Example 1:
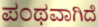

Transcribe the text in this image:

ಪಂಥವಾಗಿದೆ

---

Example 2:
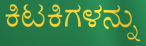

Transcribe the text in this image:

ಕಿಟಕಿಗಳನ್ನು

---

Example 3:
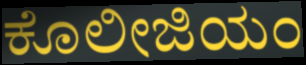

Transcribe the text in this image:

ಕೊಲೀಜಿಯಂ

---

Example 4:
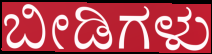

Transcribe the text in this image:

ಬೀಡಿಗಳು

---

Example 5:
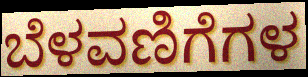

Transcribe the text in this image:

ಬೆಳವಣಿಗೆಗಳ